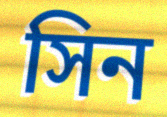
সিন